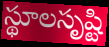
స్థూలసృష్టి